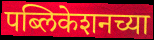
पब्लिकेशनच्या